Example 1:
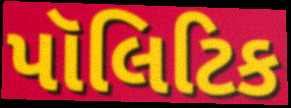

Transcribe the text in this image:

પૉલિટિક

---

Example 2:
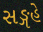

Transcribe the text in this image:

સઙ્ગહે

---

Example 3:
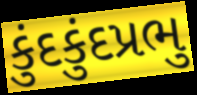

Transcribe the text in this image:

કુંદકુંદપ્રભુ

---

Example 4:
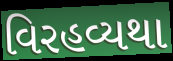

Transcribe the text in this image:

વિરહવ્યથા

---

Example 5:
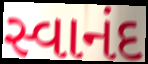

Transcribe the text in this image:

સ્વાનંદ